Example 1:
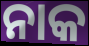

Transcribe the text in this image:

ନାକ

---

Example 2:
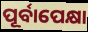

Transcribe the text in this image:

ପୂର୍ବାପେକ୍ଷା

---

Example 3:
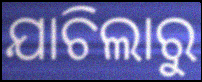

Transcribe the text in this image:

ଯାଚିଲାରୁ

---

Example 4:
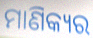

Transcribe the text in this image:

ମାଣିକ୍ୟର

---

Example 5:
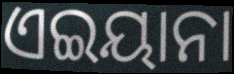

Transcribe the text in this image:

ଏଇୟାନା